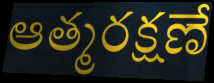
ఆత్మరక్షణే